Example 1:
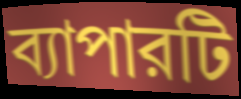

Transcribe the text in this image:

ব্যাপারটি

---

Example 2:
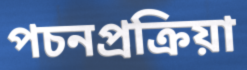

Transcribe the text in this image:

পচনপ্রক্রিয়া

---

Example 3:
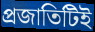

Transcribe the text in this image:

প্রজাতিটিই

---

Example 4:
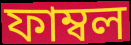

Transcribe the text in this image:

ফাম্বল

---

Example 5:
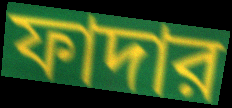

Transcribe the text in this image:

ফাদার